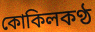
কোকিলকণ্ঠ